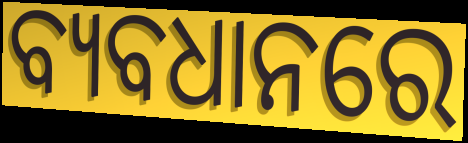
ବ୍ୟବଧାନରେ